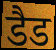
डैड